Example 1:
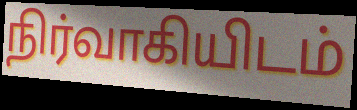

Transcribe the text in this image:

நிர்வாகியிடம்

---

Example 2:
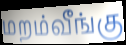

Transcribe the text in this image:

மறம்வீங்கு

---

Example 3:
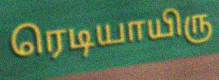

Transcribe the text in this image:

ரெடியாயிரு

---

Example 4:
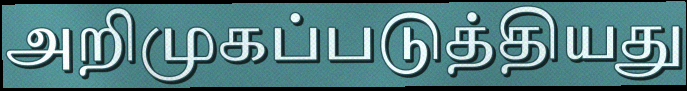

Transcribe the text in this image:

அறிமுகப்படுத்தியது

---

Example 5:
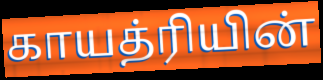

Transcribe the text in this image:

காயத்ரியின்